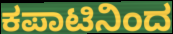
ಕಪಾಟಿನಿಂದ